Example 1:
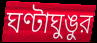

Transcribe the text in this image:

ঘণ্টাঘুঙুর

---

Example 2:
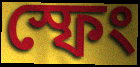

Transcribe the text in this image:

স্ফেং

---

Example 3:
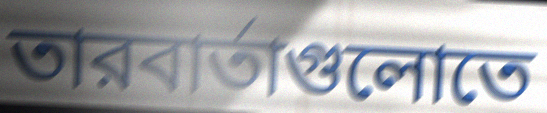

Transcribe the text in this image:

তারবার্তাগুলোতে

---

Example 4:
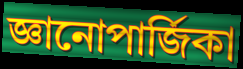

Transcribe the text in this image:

জ্ঞানোপার্জিকা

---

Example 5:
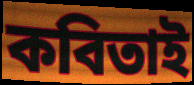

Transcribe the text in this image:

কবিতাই